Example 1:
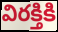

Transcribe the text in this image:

విరక్తికి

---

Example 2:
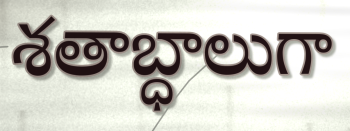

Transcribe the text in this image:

శతాబ్ధాలుగా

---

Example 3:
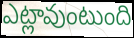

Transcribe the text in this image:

ఎట్లావుంటుంది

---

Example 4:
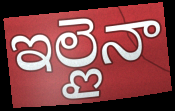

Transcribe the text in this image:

ఇల్లైనా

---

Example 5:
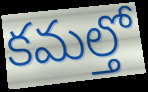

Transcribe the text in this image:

కమల్తో